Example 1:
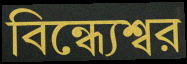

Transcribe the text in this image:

বিন্ধ্যেশ্বর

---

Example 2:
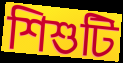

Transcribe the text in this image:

শিশুটি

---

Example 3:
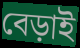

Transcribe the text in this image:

বেড়াই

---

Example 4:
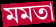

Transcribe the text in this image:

মমতা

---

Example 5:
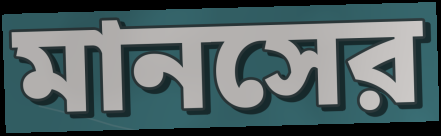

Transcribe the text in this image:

মানসের